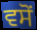
ਵਸੋਂ